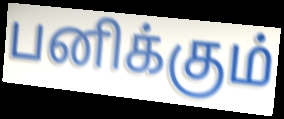
பனிக்கும்